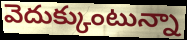
వెదుక్కుంటున్నా